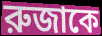
রুজাকে